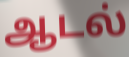
ஆடல்